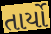
તાર્યો